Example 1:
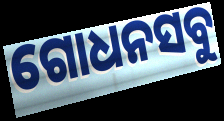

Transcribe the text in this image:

ଗୋଧନସବୁ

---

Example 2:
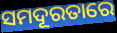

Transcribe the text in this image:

ସମଦୂରତାରେ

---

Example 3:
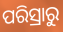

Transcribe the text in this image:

ପରିସ୍ରାରୁ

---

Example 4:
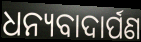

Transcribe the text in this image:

ଧନ୍ୟବାଦାର୍ପଣ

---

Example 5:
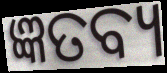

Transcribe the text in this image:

ଜ୍ଞତବ୍ୟ